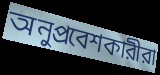
অনুপ্রবেশকারীরা